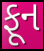
ફૂન